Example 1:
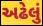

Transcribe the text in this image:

અઢેલું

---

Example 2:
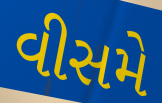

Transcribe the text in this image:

વીસમે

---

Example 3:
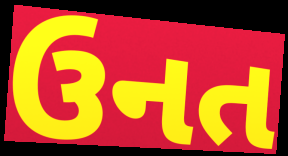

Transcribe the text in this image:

ઉનત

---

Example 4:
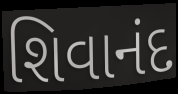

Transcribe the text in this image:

શિવાનંદ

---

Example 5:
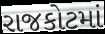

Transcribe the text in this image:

રાજકોટમાં